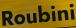
Roubini